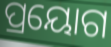
ପ୍ରୟୋଗ